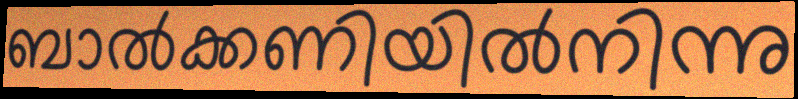
ബാൽക്കണിയിൽനിന്നു